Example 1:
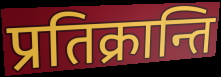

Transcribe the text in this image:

प्रतिक्रान्ति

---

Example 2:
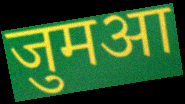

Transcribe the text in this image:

जुमआ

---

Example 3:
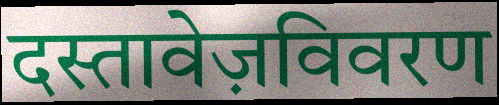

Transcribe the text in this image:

दस्तावेज़विवरण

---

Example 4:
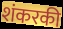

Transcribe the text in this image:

शंकरकी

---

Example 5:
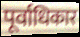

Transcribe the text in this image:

पूर्वाधिकार